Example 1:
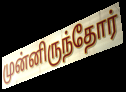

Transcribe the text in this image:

முன்னிருந்தோர்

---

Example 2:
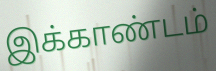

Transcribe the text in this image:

இக்காண்டம்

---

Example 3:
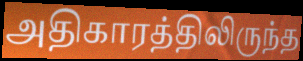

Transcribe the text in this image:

அதிகாரத்திலிருந்த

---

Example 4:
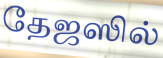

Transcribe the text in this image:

தேஜஸில்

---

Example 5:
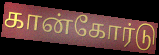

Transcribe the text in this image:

கான்கோர்டு